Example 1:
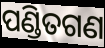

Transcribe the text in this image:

ପଣ୍ଡିତଗଣ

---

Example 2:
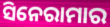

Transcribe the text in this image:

ସିନେରାମାର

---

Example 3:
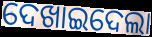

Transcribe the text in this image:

ଦେଖାଇଦେଲା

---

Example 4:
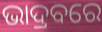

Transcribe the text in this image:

ଭାଦ୍ରବରେ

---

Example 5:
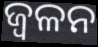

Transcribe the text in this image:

ଜ୍ୱଳନ